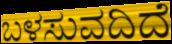
ಬಳಸುವದಿದೆ